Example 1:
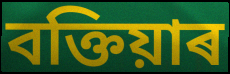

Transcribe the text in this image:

বক্তিয়াৰ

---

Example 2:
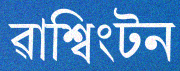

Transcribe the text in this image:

ৱাশ্বিংটন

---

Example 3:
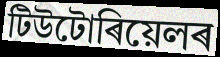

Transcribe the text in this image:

টিউটোৰিয়েলৰ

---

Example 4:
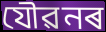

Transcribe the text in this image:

যৌৱনৰ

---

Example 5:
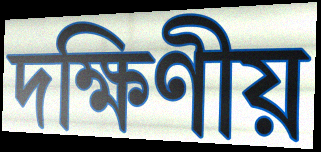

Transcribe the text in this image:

দক্ষিণীয়